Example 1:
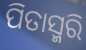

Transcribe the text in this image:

ପିତାସ୍ମରି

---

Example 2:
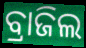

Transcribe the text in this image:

ବ୍ରାଜିଲ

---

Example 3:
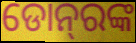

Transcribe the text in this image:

ଡୋନ୍‌ରଙ୍କ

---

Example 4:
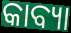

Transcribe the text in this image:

କାବ୍ୟା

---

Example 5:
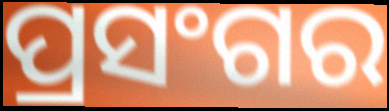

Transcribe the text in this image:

ପ୍ରସଂଗର